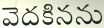
వెదకినను